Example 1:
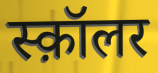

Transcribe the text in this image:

स्क़ॉलर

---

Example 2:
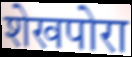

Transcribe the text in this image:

शेखपोरा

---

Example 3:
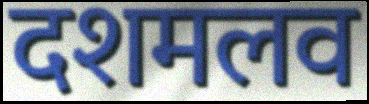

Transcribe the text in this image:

दशमलव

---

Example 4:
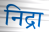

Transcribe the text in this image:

निद्रा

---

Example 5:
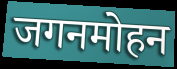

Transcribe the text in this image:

जगनमोहन